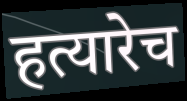
हत्यारेच